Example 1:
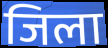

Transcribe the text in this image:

जिला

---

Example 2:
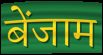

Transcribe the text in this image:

बेंजाम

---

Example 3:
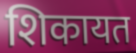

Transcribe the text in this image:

शिकायत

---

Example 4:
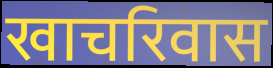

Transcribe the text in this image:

खाचरिवास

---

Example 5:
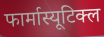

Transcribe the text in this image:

फार्मास्यूटिक्ल